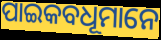
ପାଇକବଧୂମାନେ